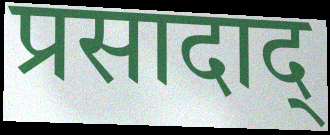
प्रसादाद्